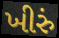
ખીરું